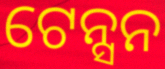
ଟେନ୍ସନ